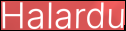
Halardu